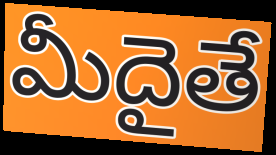
మీదైతే